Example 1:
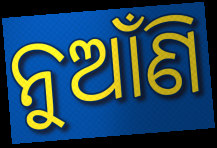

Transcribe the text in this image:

ନୁଆଁଣି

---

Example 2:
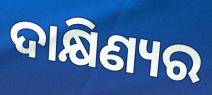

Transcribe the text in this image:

ଦାକ୍ଷିଣ୍ୟର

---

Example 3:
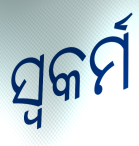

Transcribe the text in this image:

ସ୍ଵକର୍ମ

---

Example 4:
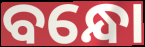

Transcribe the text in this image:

ବନ୍ଧୋ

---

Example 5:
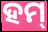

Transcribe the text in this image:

ହମ୍